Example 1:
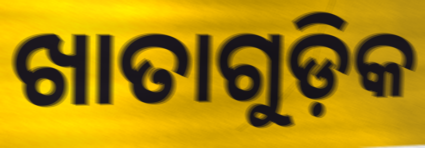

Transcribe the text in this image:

ଖାତାଗୁଡ଼ିକ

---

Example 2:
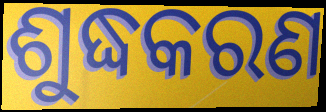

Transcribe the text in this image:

ଶୁଦ୍ଧକରଣ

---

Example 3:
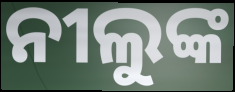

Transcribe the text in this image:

ନୀଲୁଙ୍କ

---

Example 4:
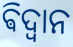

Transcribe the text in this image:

ଵିଦ୍ଵାନ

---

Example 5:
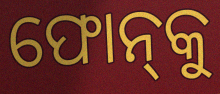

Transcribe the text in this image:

ଫୋନ୍‌କୁ